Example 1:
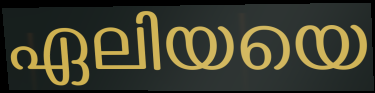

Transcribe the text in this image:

ഏലിയയെ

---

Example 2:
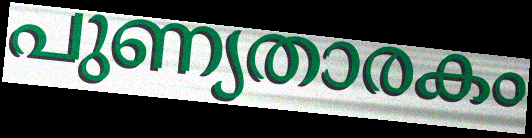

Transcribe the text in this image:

പുണ്യതാരകം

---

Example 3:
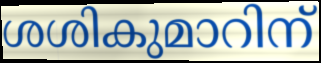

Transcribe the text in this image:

ശശികുമാറിന്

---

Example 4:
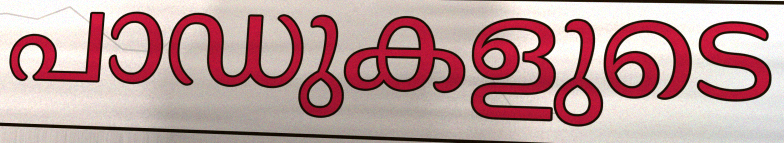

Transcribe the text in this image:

പാഡുകളുടെ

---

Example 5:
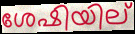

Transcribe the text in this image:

ശേഷിയില്